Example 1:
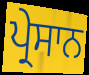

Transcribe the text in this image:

ਪ੍ਰੇਸਾਨ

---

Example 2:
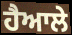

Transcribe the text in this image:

ਹੈਆਲੇ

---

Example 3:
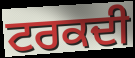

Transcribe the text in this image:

ਟਰਕਦੀ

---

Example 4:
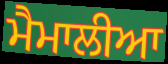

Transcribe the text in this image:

ਮੈਮਾਲੀਆ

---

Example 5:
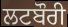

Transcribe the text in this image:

ਲਟਬੌਰੀ